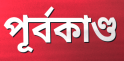
পূর্বকাণ্ড